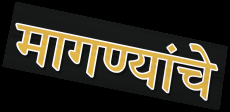
मागण्यांचे